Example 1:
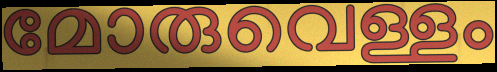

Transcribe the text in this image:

മോരുവെള്ളം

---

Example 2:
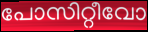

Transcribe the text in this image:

പോസിറ്റീവോ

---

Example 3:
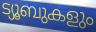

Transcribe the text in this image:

ട്യൂബുകളും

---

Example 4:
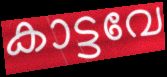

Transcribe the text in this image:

കാട്ടവേ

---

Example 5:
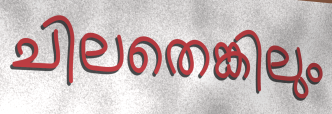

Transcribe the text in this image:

ചിലതെങ്കിലും